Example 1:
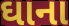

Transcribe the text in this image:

ઘાના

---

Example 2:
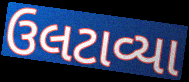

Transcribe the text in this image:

ઉલટાવ્યા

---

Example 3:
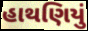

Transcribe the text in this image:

હાથણિયું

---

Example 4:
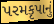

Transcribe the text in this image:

પરમકૃપાનું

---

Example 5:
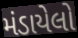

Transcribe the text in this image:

મંડાયેલો